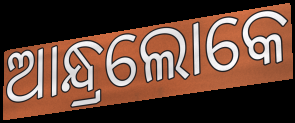
ଆନ୍ଧ୍ରଲୋକେ